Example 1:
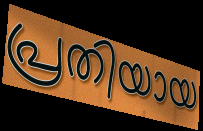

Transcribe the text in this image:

പ്രതിയായ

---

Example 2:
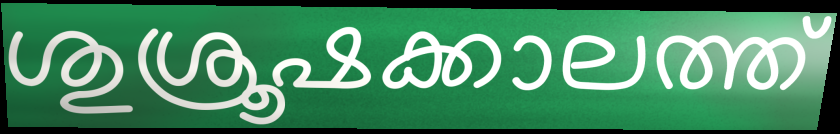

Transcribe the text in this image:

ശുശ്രൂഷക്കാലത്ത്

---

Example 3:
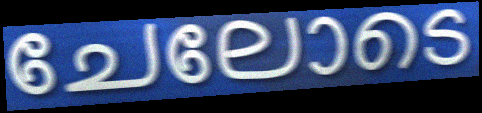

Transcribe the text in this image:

ചേലോടെ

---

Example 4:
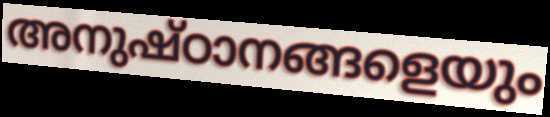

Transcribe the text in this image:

അനുഷ്ഠാനങ്ങളെയും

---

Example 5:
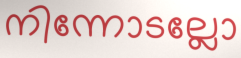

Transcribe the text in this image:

നിന്നോടല്ലോ